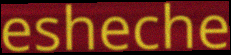
esheche